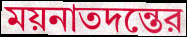
ময়নাতদন্তের